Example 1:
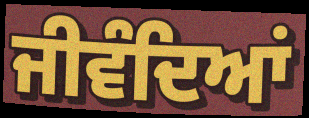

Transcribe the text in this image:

ਜੀਵੰਦਿਆਂ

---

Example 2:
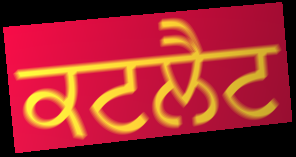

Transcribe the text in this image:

ਕਟਲੈਟ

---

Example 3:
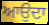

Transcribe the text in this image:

ਆਉਦਾ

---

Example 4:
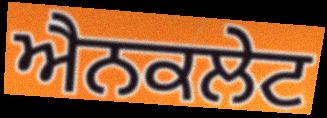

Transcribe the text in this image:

ਐਨਕਲੇਟ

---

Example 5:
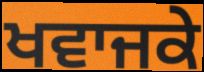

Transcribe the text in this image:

ਖਵਾਜਕੇ